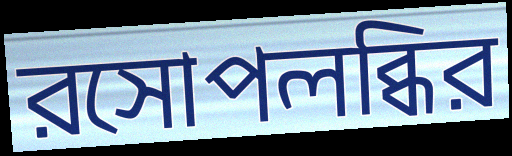
রসোপলব্ধির